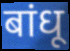
बांधू